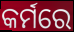
କର୍ମରେ